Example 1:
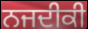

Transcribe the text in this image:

ਨਜਦੀਕੀ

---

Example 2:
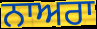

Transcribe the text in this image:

ਨਾਅਰਾ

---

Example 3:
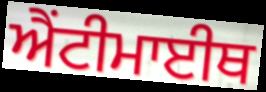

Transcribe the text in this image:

ਐਂਟੀਮਾਈਥ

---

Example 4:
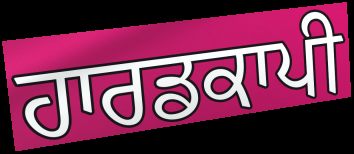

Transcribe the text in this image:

ਹਾਰਡਕਾਪੀ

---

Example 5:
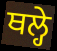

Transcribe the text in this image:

ਥਲ੍ਹੇ